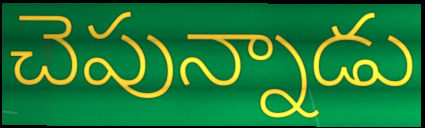
చెపున్నాడు